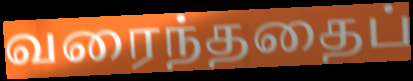
வரைந்ததைப்